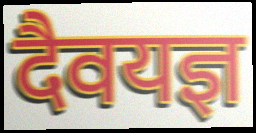
दैवयज्ञ